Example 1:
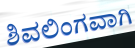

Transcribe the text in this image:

ಶಿವಲಿಂಗವಾಗಿ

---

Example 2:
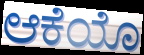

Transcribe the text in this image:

ಆಕೆಯೊ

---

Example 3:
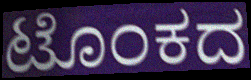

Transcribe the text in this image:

ಟೊಂಕದ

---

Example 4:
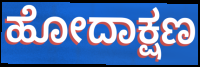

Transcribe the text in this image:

ಹೋದಾಕ್ಷಣ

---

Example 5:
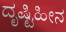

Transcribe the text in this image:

ದೃಷ್ಟಿಹೀನ